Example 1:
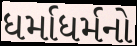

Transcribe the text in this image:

ધર્માધર્મનો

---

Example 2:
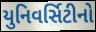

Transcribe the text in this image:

યુનિવર્સિટીનો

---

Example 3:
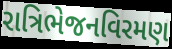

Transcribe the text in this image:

રાત્રિભેજનવિરમણ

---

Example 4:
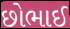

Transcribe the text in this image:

છોભાઈ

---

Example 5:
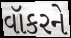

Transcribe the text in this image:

વૉકરને